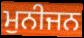
ਮੁਨੀਜਨ